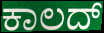
ಕಾಲದ್